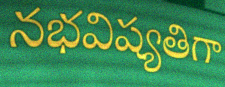
నభవిష్యతిగా